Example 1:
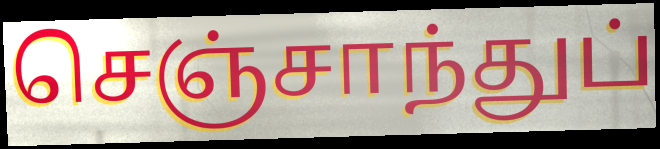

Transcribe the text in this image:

செஞ்சாந்துப்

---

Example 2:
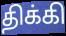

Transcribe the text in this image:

திக்கி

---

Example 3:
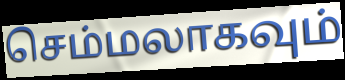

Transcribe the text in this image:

செம்மலாகவும்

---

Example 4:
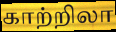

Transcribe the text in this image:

காற்றிலா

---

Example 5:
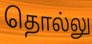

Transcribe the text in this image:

தொல்லு